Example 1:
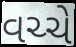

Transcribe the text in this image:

વચ્ચે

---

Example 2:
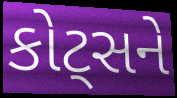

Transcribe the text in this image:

કોટ્સને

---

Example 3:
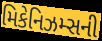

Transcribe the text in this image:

મિકેનિઝમ્સની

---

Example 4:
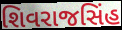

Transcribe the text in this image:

શિવરાજસિંહ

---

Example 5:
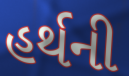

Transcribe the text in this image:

હર્થની